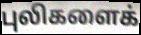
புலிகளைக்